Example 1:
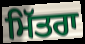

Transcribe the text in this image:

ਮਿੱਤਰਾ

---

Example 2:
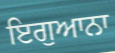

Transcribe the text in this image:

ਇਗੁਆਨਾ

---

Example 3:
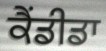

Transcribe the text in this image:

ਕੈਂਡੀਡਾ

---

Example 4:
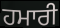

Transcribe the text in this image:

ਹਮਾਰੀ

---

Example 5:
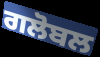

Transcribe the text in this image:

ਗਲੋਬਲ